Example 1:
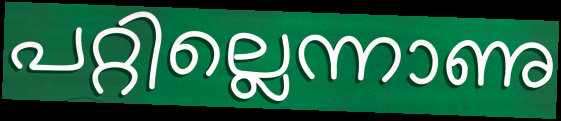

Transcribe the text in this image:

പറ്റില്ലെന്നാണു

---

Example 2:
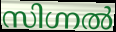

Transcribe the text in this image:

സിഗ്നൽ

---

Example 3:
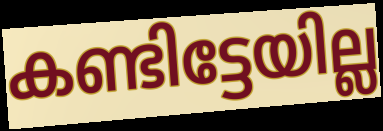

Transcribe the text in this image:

കണ്ടിട്ടേയില്ല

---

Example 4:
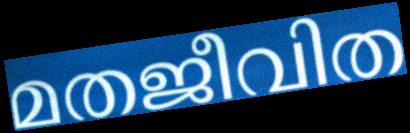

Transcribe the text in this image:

മതജീവിത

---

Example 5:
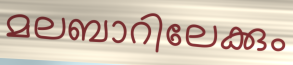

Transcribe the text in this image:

മലബാറിലേക്കും